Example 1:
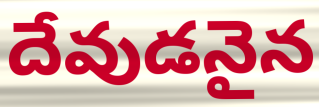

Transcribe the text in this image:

దేవుడనైన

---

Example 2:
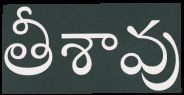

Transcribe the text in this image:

తీశావు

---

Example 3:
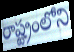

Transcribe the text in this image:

రాష్ట్రంలోని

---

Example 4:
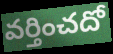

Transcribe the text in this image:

వర్తించదో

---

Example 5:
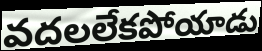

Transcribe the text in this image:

వదలలేకపోయాడు